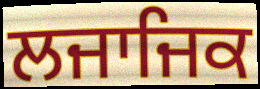
ਲਜਾਜਿਕ